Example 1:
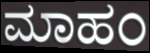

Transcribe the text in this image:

ಮಾಹಂ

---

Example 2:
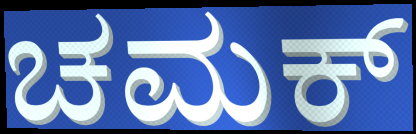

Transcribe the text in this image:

ಚಮಕ್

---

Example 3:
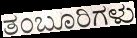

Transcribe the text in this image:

ತಂಬೂರಿಗಳು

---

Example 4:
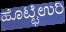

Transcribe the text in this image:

ಹೊಟ್ಟೆಉರಿ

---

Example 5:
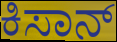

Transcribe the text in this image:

ಕಿಸಾನ್